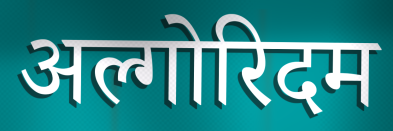
अल्गोरिदम